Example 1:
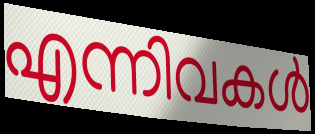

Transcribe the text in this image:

എന്നിവകൾ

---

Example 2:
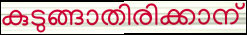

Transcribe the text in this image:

കുടുങ്ങാതിരിക്കാന്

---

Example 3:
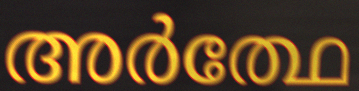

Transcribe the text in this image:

അർത്ഥേ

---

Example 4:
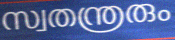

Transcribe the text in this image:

സ്വതന്ത്രരും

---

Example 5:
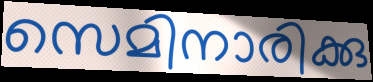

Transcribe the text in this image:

സെമിനാരിക്കു